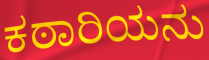
ಕಠಾರಿಯನು